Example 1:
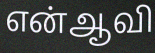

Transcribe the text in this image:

என்ஆவி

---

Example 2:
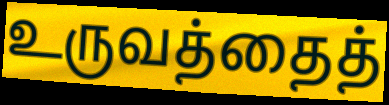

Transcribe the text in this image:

உருவத்தைத்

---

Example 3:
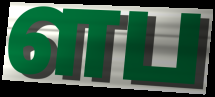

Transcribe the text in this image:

ளப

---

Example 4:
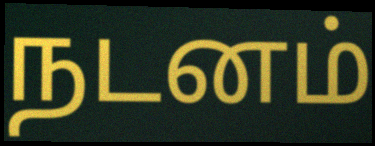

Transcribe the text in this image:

நடனம்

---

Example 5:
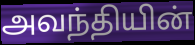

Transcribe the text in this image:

அவந்தியின்